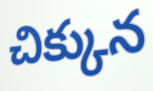
చిక్కున